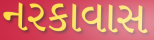
નરકાવાસ